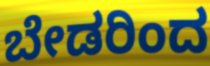
ಬೇಡರಿಂದ